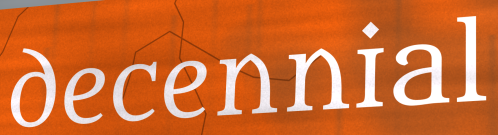
decennial